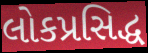
લોકપ્રસિદ્ધ